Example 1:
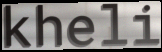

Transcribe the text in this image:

kheli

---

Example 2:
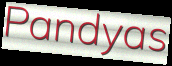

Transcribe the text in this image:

Pandyas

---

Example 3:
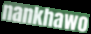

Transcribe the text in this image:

nankhawo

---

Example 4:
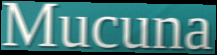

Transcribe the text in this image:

Mucuna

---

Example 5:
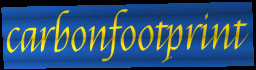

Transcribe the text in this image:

carbonfootprint